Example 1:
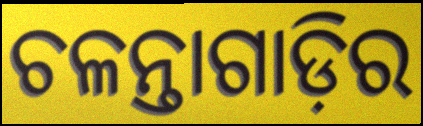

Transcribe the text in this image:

ଚଳନ୍ତାଗାଡ଼ିର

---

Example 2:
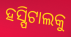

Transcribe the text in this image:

ହସ୍ପିଟାଲକୁ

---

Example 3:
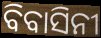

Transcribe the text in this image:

ବିବାସିନୀ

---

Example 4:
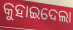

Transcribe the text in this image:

କୁହାଇଦେଲା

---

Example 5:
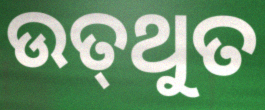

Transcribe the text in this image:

ଉତ୍‌ଥୁତ